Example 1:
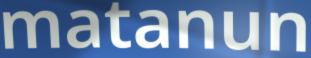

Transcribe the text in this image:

matanun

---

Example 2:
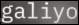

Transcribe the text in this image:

galiyo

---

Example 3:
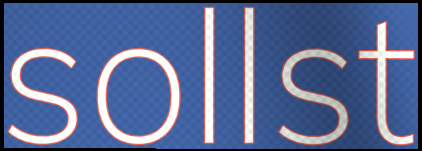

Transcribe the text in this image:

sollst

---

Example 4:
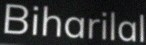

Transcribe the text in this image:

Biharilal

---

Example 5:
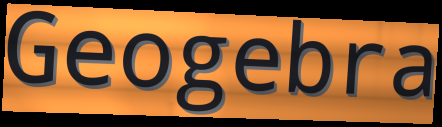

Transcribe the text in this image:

Geogebra